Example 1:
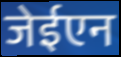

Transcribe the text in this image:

जेईएन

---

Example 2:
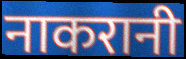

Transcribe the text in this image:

नाकरानी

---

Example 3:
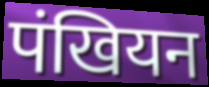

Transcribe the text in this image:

पंखियन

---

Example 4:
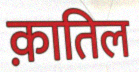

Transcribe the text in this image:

क़ातिल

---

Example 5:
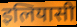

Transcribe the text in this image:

इलियासी